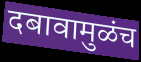
दबावामुळंच